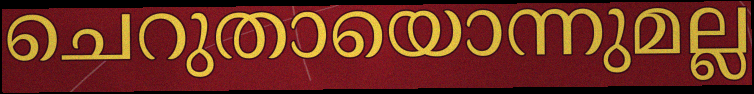
ചെറുതായൊന്നുമല്ല